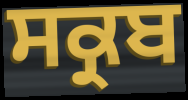
ਸਕ੍ਰਬ